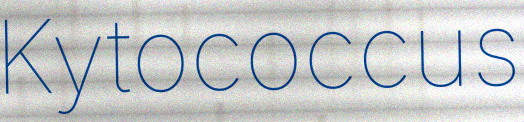
Kytococcus